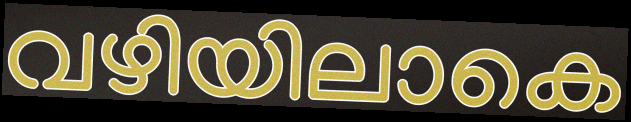
വഴിയിലാകെ